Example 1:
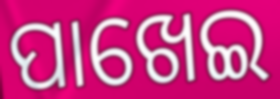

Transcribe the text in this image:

ପାଖେଇ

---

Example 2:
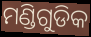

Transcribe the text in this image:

ମଣ୍ଡିଗୁଡିକ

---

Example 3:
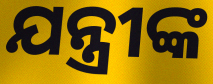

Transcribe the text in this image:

ଯନ୍ତ୍ରୀଙ୍କ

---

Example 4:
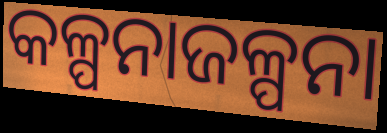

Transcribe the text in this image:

କଳ୍ପନାଜଳ୍ପନା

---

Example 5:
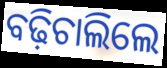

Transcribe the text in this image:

ବଢ଼ିଚାଲିଲେ